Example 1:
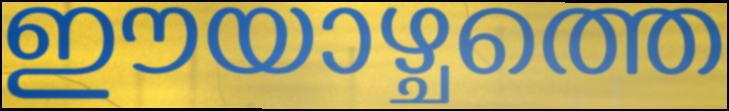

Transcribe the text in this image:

ഈയാഴ്ചത്തെ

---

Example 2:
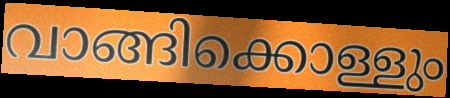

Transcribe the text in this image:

വാങ്ങിക്കൊള്ളും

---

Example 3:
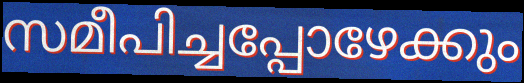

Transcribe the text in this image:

സമീപിച്ചപ്പോഴേക്കും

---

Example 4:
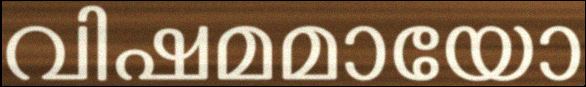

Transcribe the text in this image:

വിഷമമായോ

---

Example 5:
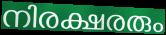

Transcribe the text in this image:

നിരക്ഷരരും